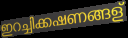
ഇറച്ചിക്കഷണങ്ങള്